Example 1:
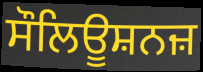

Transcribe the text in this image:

ਸੌਲਿਊਸ਼ਨਜ਼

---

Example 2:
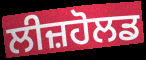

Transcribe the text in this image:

ਲੀਜ਼ਹੋਲਡ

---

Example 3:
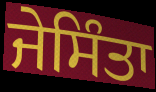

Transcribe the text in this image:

ਜੇਸਿੰਤਾ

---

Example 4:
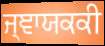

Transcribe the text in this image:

ਜ੍ਞਾਯਕਕੀ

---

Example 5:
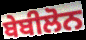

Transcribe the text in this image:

ਬੇਬੀਲੋਨ